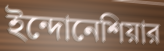
ইন্দোনেশিয়ার